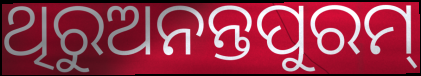
ଥିରୁଅନନ୍ତପୁରମ୍